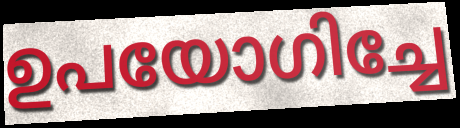
ഉപയോഗിച്ചേ